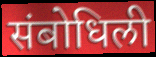
संबोधिली